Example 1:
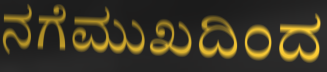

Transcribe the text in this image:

ನಗೆಮುಖದಿಂದ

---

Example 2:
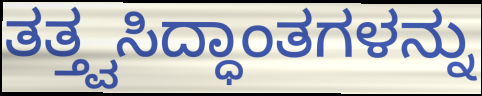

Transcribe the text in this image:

ತತ್ತ್ವಸಿದ್ಧಾಂತಗಳನ್ನು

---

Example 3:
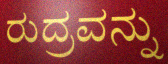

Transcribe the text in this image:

ರುದ್ರವನ್ನು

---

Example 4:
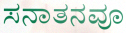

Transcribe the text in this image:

ಸನಾತನವೂ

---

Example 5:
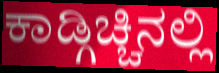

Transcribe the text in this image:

ಕಾಡ್ಗಿಚ್ಚಿನಲ್ಲಿ